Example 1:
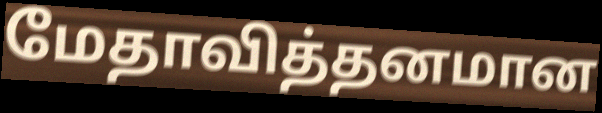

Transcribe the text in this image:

மேதாவித்தனமான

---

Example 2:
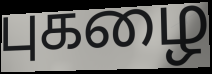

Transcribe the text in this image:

புகழை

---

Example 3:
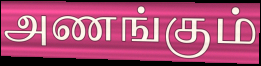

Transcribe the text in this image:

அணங்கும்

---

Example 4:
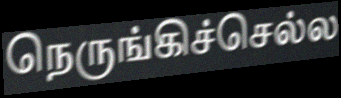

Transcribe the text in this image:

நெருங்கிச்செல்ல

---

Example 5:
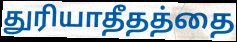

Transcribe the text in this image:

துரியாதீதத்தை